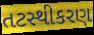
તટસ્થીકરણ